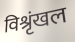
विश्रृंखल